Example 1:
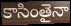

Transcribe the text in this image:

కాసింతైనా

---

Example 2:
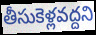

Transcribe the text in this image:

తీసుకెళ్లవద్దని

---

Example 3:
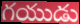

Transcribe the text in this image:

గయుడు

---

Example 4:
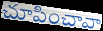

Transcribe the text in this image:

చూపించావా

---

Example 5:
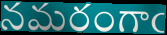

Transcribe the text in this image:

నమరంగాఁ